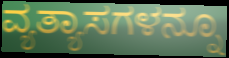
ವ್ಯತ್ಯಾಸಗಳನ್ನೂ